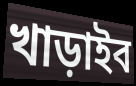
খাড়াইব